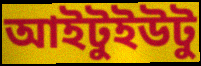
আইটুইউটু